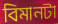
বিমানটা